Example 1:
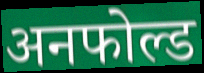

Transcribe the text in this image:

अनफोल्ड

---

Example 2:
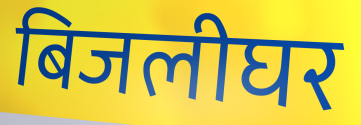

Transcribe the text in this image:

बिजलीघर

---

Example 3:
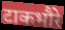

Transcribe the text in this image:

टाकभौरे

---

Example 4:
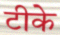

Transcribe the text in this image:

टीके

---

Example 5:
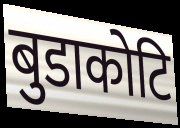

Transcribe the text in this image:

बुडाकोटि